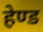
हेण्ड